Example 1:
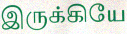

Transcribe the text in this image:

இருக்கியே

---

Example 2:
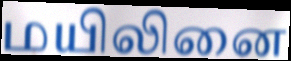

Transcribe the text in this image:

மயிலினை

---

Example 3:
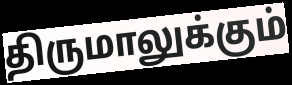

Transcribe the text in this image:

திருமாலுக்கும்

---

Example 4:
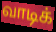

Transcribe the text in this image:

வாடிக்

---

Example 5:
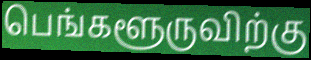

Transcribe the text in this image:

பெங்களூருவிற்கு